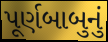
પૂર્ણબાબુનું